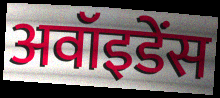
अवॉइडेंस